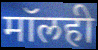
मॉलही